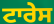
ਟਾਰੇਸ